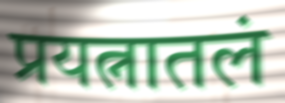
प्रयत्नातलं